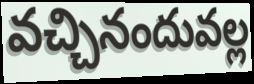
వచ్చినందువల్ల